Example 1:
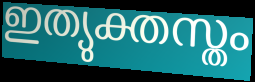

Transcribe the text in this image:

ഇത്യുക്തസ്തം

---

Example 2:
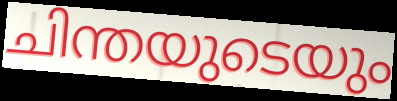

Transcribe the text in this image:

ചിന്തയുടെയും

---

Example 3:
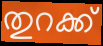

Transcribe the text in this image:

തുറക്ക്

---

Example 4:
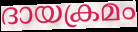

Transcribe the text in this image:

ദായക്രമം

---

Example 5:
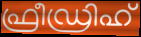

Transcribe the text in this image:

ഫ്രീഡ്രിഹ്